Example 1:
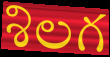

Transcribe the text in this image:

శిలగ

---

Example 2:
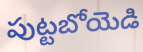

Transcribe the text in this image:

పుట్టబోయెడి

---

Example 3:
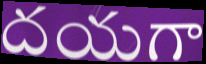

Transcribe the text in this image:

దయగా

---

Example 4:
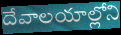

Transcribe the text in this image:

దేవాలయాల్లోని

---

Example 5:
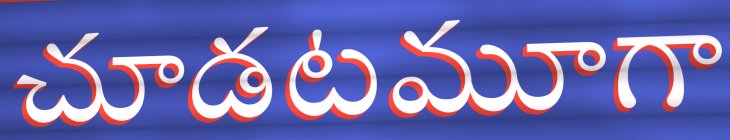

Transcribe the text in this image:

చూడటమూగా